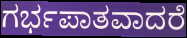
ಗರ್ಭಪಾತವಾದರೆ